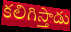
కలిగిస్తాడు